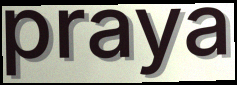
praya